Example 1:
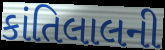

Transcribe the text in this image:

કાંતિલાલની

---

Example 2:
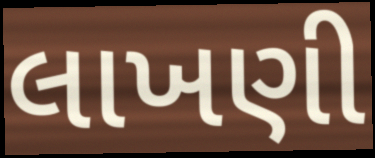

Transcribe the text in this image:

લાખણી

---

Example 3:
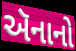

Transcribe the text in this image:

ઍનાનો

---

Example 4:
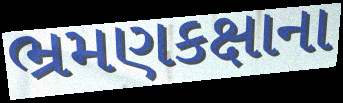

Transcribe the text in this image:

ભ્રમણકક્ષાના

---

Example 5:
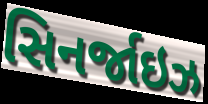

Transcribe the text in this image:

સિનર્જાઇઝ